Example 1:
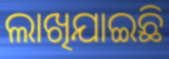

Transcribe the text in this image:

ଲାଖିଯାଇଛି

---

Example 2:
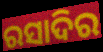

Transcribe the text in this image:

ରସାଦିର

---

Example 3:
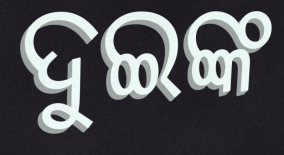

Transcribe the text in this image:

ଦୁଇଙ୍କ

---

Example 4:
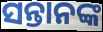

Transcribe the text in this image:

ସନ୍ତାନଙ୍କ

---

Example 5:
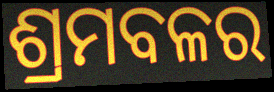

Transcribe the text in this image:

ଶ୍ରମବଳର